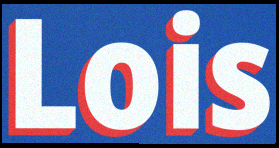
Lois